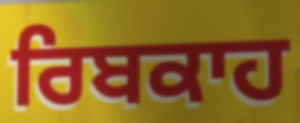
ਰਿਬਕਾਹ